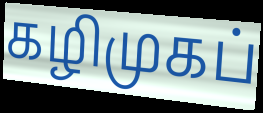
கழிமுகப்